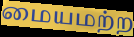
மையமற்ற